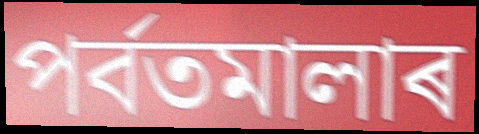
পৰ্বতমালাৰ